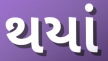
થયાં